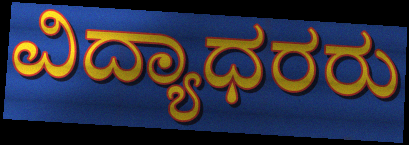
ವಿದ್ಯಾಧರರು